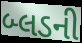
બ્લડની